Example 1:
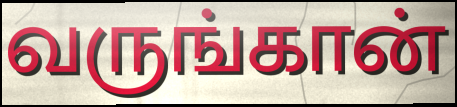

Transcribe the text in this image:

வருங்கான்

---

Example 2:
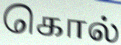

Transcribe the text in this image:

கொல்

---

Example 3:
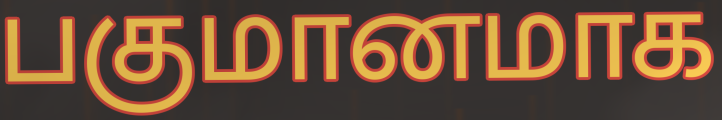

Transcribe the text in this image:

பகுமானமாக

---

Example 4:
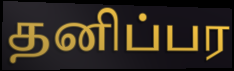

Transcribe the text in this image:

தனிப்பர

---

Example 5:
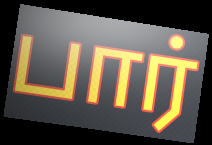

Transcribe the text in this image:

பார்